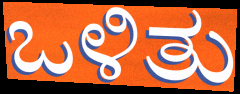
ಒಳಿತು